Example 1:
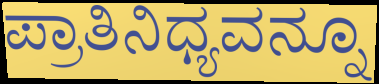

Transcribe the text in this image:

ಪ್ರಾತಿನಿಧ್ಯವನ್ನೂ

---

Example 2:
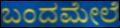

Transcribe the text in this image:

ಬಂದಮೇಲೆ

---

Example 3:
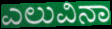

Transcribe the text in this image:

ಎಲುವಿನಾ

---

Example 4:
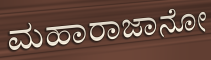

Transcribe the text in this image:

ಮಹಾರಾಜಾನೋ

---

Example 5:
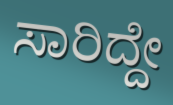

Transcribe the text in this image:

ಸಾರಿದ್ದೇ